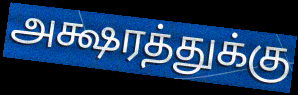
அக்ஷரத்துக்கு